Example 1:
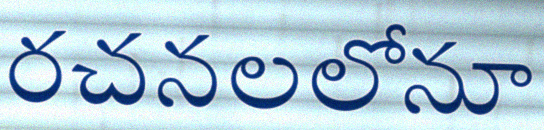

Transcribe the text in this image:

రచనలలోనూ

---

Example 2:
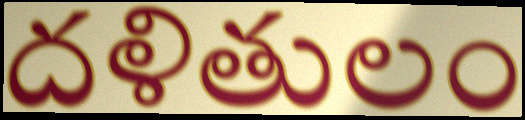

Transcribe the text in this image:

దళితులం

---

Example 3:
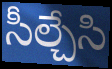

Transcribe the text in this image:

సీల్చేసి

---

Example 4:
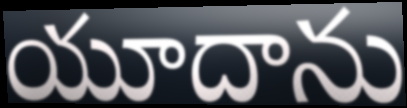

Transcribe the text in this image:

యూదాను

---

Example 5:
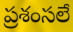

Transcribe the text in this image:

ప్రశంసలే